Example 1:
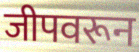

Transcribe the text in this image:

जीपवरून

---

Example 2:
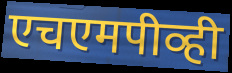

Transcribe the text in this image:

एचएमपीव्ही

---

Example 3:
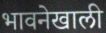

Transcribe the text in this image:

भावनेखाली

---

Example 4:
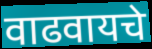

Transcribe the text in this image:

वाढवायचे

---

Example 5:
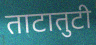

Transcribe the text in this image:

ताटातुटी